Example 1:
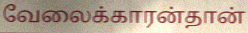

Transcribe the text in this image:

வேலைக்காரன்தான்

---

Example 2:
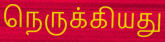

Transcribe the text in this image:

நெருக்கியது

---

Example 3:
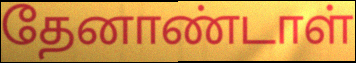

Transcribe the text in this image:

தேனாண்டாள்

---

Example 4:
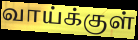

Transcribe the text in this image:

வாய்க்குள்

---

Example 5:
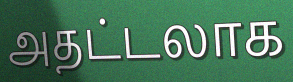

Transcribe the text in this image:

அதட்டலாக